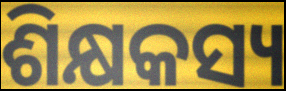
ଶିକ୍ଷକସ୍ୟ